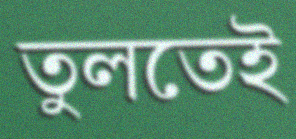
তুলতেই